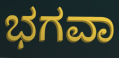
ಭಗವಾ